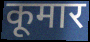
कूमार